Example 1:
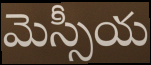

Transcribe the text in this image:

మెస్సీయ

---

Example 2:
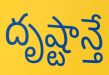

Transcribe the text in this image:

దృష్టాన్తే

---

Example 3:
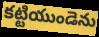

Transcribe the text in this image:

కట్టియుండెను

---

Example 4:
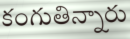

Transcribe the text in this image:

కంగుతిన్నారు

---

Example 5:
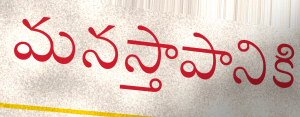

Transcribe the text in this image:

మనస్తాపానికి